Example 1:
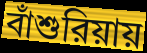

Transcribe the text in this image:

বাঁশুরিয়ায়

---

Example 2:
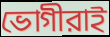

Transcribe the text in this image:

ভোগীরাই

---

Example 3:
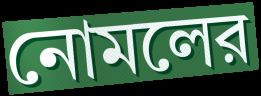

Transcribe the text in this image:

নোমলের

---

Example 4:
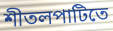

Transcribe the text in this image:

শীতলপাটিতে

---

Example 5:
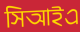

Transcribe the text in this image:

সিআইএ